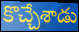
కొచ్చేశాడు